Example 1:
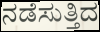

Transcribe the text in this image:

ನಡೆಸುತ್ತಿದ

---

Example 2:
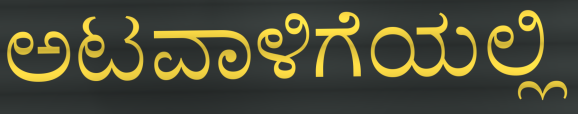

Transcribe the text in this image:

ಅಟವಾಳಿಗೆಯಲ್ಲಿ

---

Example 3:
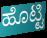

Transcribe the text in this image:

ಹೊಟ್ಟಿ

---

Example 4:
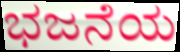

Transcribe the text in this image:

ಭಜನೆಯ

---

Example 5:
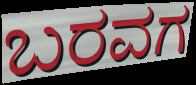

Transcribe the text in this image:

ಬರವಗ